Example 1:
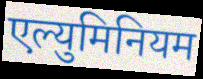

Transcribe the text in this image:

एल्युमिनियम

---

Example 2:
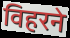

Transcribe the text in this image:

विहरने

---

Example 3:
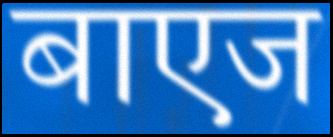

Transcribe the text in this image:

बाएज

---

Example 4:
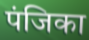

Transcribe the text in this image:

पंजिका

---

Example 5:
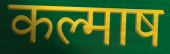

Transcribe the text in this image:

कल्माष